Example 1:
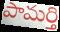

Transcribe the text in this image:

పామర్తి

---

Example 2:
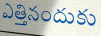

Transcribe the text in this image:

ఎత్తినందుకు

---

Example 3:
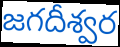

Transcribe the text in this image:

జగదీశ్వర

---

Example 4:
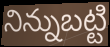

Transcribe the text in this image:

నిన్నుబట్టి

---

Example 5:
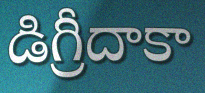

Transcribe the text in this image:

డిగ్రీదాకా